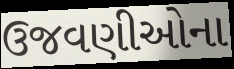
ઉજવણીઓના